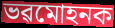
ভৱমোহনক